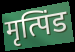
मृत्पिंड